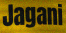
Jagani